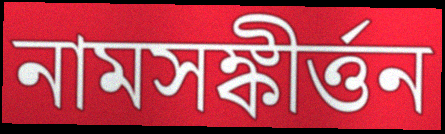
নামসঙ্কীর্ত্তন